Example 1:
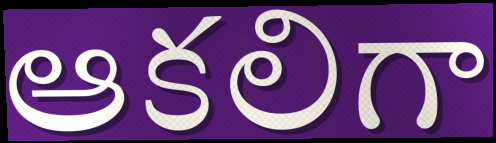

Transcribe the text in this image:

ఆకలిగా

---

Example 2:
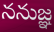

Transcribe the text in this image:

ననుజ్ఞ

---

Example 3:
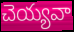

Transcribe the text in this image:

చెయ్యవా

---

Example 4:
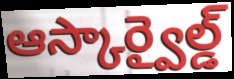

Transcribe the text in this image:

ఆస్కార్వైల్డ్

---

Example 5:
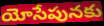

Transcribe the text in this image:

యోసేపునకు